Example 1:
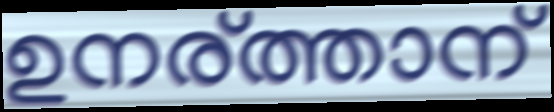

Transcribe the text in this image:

ഉനര്ത്താന്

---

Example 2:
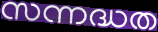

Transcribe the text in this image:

സന്നദ്ധത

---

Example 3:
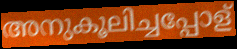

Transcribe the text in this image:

അനുകൂലിച്ചപ്പോള്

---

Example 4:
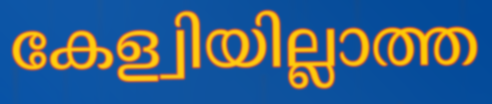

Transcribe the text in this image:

കേള്വിയില്ലാത്ത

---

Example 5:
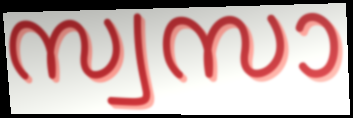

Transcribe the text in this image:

സ്വസാ